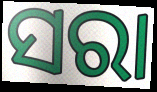
ସରା